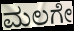
ಮಲಗೇ